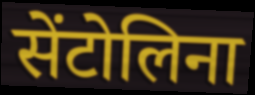
सेंटोलिना